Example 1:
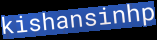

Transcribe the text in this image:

kishansinhp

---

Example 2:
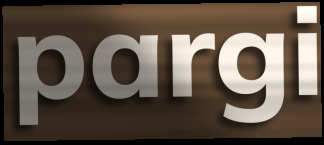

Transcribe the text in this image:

pargi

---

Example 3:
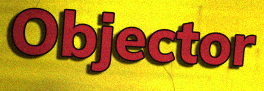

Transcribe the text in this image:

Objector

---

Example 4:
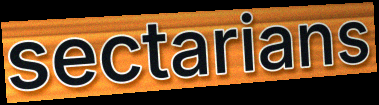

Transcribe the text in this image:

sectarians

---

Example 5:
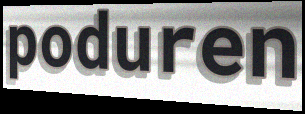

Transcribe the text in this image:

poduren